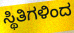
ಸ್ಥಿತಿಗಳಿಂದ